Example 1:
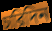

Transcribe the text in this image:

চারিদিন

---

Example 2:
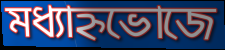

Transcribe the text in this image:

মধ্যাহ্নভোজে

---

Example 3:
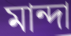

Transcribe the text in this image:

মান্দা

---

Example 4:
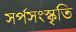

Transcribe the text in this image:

সর্পসংস্কৃতি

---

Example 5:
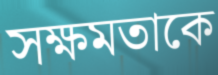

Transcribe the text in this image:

সক্ষমতাকে